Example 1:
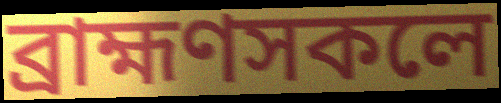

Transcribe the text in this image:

ব্ৰাহ্মণসকলে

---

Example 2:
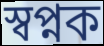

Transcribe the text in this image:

স্বপ্নক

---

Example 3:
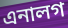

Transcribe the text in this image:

এনালগ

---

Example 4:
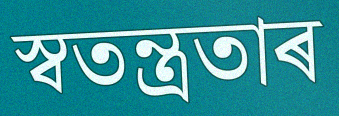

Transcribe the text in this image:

স্বতন্ত্ৰতাৰ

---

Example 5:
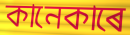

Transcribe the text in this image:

কানেকাৰে